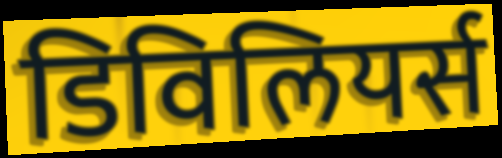
डिविलियर्स